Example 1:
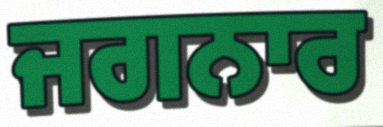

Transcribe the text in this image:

ਜਗਨਾਰ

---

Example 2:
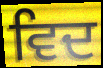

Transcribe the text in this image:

ਵਿਦ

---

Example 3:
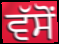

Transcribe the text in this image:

ਵੱਸੋਂ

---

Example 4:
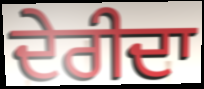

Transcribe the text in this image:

ਦੇਰੀਦਾ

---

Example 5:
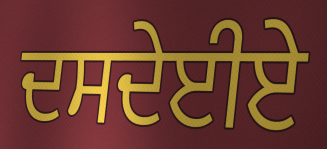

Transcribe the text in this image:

ਦਸਦੇਈਏ